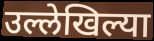
उल्लेखिल्या